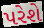
પરેશે